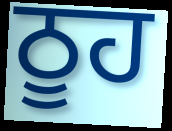
ਠੂਹ